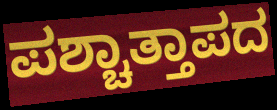
ಪಶ್ಚಾತ್ತಾಪದ